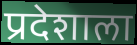
प्रदेशाला